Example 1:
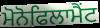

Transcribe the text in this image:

ਮੋਨੋਫਿਲਾਮੈਂਟ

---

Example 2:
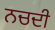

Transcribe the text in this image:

ਨਚਦੀ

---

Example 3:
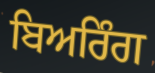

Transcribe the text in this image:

ਬਿਅਰਿੰਗ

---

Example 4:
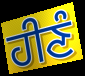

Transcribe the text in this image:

ਹੀਣੰ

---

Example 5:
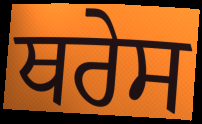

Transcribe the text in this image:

ਥਰੇਸ